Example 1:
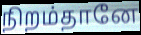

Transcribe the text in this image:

நிறம்தானே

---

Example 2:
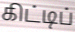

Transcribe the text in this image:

கிட்டிப்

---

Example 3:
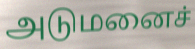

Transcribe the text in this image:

அடுமனைச்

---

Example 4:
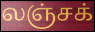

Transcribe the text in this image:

லஞ்சக்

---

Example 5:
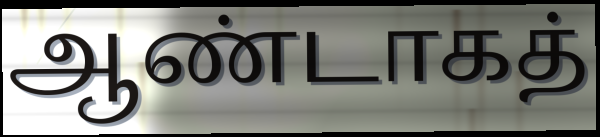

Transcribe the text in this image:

ஆண்டாகத்